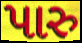
પારુ